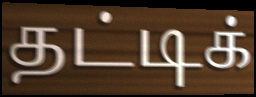
தட்டிக்